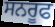
ਸਨਰੂਫ